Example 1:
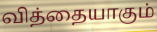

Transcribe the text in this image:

வித்தையாகும்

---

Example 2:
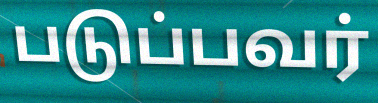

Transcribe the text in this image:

படுப்பவர்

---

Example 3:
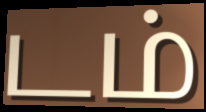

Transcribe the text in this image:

டம்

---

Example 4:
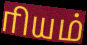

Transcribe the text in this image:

ரியம்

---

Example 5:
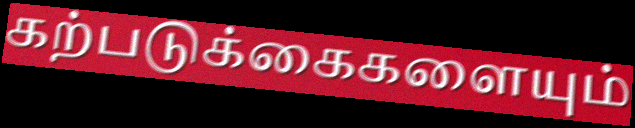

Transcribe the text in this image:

கற்படுக்கைகளையும்